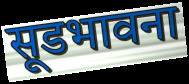
सूडभावना